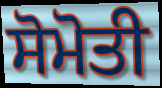
ਸੋਮੋਤੀ